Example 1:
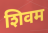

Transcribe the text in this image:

शिवम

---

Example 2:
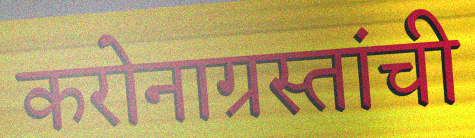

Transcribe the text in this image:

करोनाग्रस्तांची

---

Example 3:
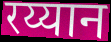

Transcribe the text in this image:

रय्यान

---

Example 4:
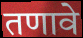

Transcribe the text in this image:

तणावे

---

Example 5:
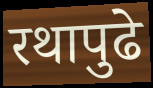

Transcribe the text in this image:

रथापुढे